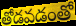
తోడవడంతో